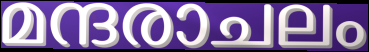
മന്ദരാചലം